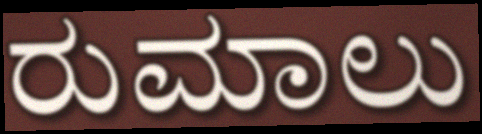
ರುಮಾಲು